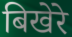
बिखेरे